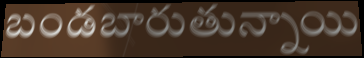
బండబారుతున్నాయి